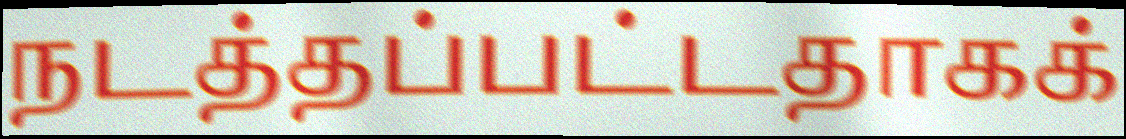
நடத்தப்பட்டதாகக்